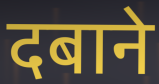
दबाने